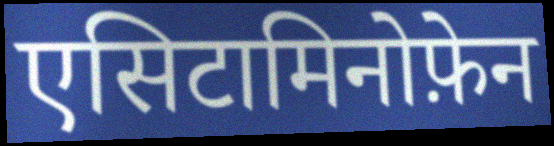
एसिटामिनोफ़ेन